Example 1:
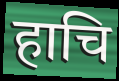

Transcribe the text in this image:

हाचि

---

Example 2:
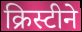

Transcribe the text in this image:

क्रिस्टीने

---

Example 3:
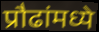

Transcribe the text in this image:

प्रौढांमध्ये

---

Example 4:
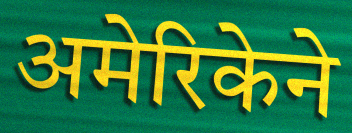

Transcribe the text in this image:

अमेरिकेने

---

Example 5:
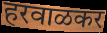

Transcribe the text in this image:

हरवाळकर